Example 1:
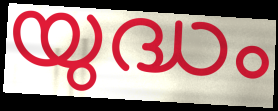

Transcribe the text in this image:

യുദ്ധം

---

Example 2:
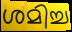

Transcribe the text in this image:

ശമിച്ച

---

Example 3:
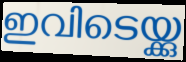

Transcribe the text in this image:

ഇവിടെയ്ക്കു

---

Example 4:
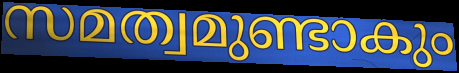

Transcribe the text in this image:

സമത്വമുണ്ടാകും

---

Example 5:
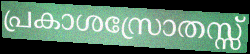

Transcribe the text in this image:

പ്രകാശസ്രോതസ്സ്